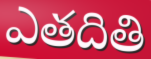
ఎతదితి